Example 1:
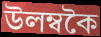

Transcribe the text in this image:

উলম্বকৈ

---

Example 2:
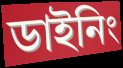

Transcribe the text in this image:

ডাইনিং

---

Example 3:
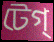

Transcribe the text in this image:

টেগ্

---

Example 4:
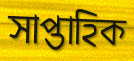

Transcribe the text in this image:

সাপ্তাহিক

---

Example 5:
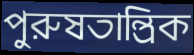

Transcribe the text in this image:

পুৰুষতান্ত্ৰিক